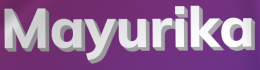
Mayurika